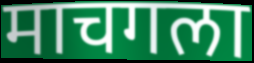
माचगला